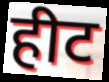
हीट